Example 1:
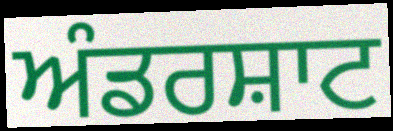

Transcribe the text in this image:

ਅੰਡਰਸ਼ਾਟ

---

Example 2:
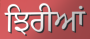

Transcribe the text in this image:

ਝਿਰੀਆਂ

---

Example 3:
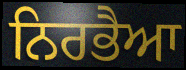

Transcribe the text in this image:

ਨਿਰਭੈਆ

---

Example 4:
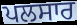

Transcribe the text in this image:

ਪਲਸਾਰ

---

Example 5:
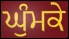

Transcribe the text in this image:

ਘੁੰਮਕੇ